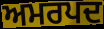
ਅਮਰਪਦ